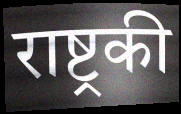
राष्ट्रकी